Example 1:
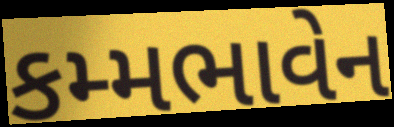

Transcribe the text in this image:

કમ્મભાવેન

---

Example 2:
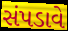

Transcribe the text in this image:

સંપડાવે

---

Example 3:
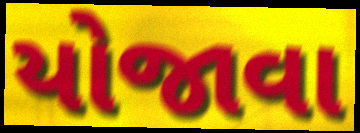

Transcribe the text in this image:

યોજાવા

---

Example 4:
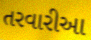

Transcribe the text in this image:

તરવારીઆ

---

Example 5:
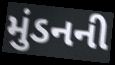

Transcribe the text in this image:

મુંડનની